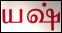
யஷ்